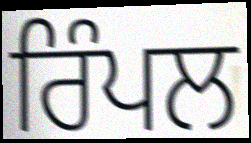
ਰਿੰਪਲ